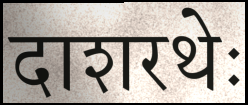
दाशरथेः